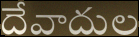
దేవాదుల